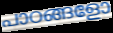
പാഠങ്ങളോ